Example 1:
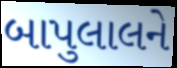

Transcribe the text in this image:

બાપુલાલને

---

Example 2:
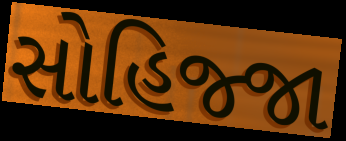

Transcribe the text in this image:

સોહિજ્જા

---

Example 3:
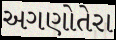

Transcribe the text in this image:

અગણોતેરા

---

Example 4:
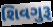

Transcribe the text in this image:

શિવગુરૂ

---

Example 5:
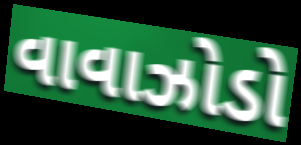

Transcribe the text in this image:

વાવાઝોડો